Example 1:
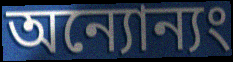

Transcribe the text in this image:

অন্যোন্যং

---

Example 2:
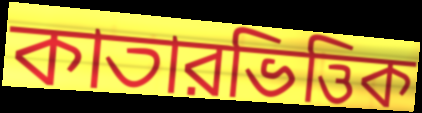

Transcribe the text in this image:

কাতারভিত্তিক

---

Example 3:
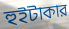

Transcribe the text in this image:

হুইটাকার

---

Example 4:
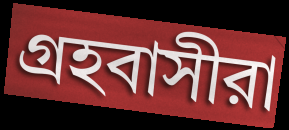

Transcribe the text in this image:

গ্রহবাসীরা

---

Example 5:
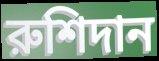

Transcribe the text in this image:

রুশিদান